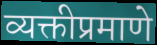
व्यक्तीप्रमाणे